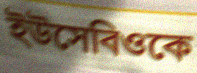
ইউসেবিওকে